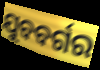
ଯୁବବର୍ଗର